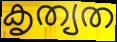
കൃത്യത